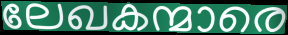
ലേഖകന്മാരെ